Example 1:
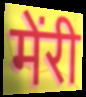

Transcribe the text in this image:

मेंरी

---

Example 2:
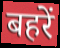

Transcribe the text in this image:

बहरें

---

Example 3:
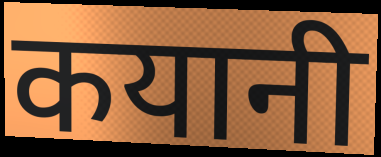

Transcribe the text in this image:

कयानी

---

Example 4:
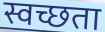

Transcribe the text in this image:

स्वच्छता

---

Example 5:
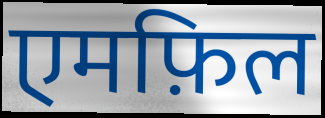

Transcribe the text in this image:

एमफ़िल